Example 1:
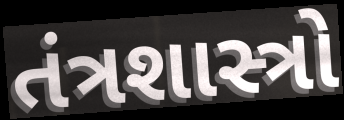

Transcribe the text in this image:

તંત્રશાસ્ત્રો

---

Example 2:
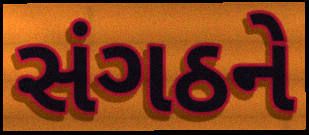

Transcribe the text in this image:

સંગઠને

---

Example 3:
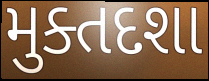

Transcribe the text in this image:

મુક્તદશા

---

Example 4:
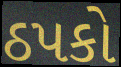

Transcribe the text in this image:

ઠપકો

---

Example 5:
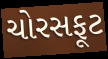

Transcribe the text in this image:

ચોરસફૂટ